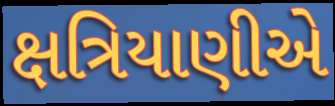
ક્ષત્રિયાણીએ